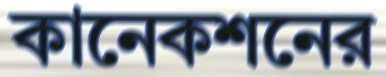
কানেকশনের